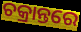
ଚକ୍ରାନ୍ତରେ